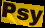
Psy